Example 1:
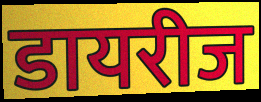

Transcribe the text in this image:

डायरीज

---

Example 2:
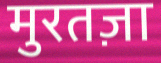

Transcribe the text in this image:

मुरतज़ा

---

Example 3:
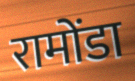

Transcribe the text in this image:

रामोंडा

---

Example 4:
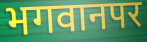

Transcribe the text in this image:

भगवानपर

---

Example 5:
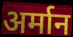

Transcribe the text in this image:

अर्मान